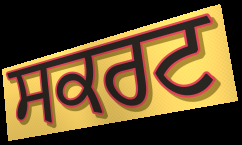
ਸਕਰਟ